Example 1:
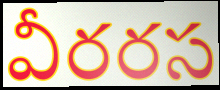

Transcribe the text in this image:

వీరరస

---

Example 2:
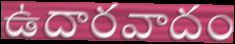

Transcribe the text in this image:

ఉదారవాదం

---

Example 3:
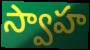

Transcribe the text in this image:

స్వాహ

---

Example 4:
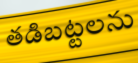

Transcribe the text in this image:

తడిబట్టలను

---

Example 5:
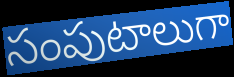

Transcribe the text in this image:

సంపుటాలుగా